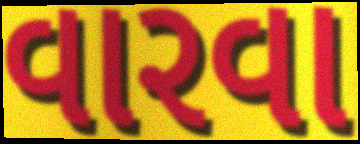
વારવા